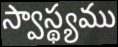
స్వాస్థ్యము